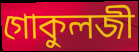
গোকুলজী